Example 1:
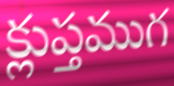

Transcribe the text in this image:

క్లుప్తముగ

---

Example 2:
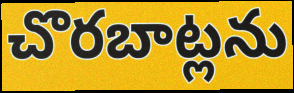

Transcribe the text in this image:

చొరబాట్లను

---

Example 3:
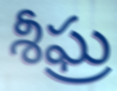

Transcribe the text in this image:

శీఘ్ర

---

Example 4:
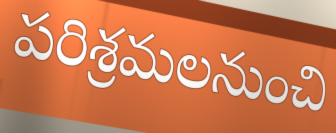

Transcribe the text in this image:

పరిశ్రమలనుంచి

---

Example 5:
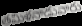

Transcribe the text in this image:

తమిళనాడువారు